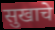
सुखाचे